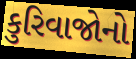
કુરિવાજોનો